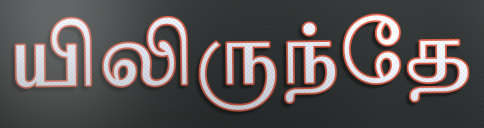
யிலிருந்தே